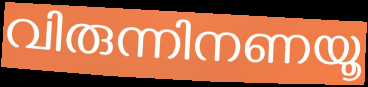
വിരുന്നിനണയൂ